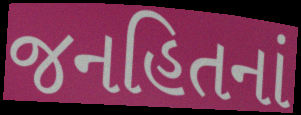
જનહિતનાં